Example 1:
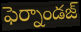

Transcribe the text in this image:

ఫెర్నాండజ్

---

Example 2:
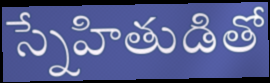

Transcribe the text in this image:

స్నేహితుడితో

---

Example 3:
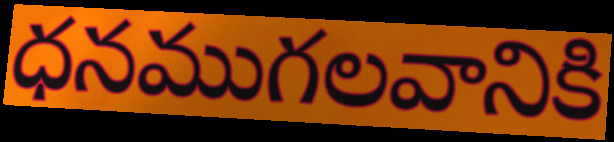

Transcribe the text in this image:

ధనముగలవానికి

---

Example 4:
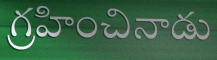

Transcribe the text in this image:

గ్రహించినాడు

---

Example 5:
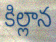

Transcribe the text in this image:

కిల్లాన